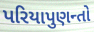
પરિયાપુણન્તો